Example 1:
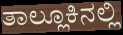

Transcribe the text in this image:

ತಾಲ್ಲೂಕಿನಲ್ಲಿ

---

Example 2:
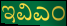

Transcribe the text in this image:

ಇವಿಎಂ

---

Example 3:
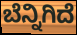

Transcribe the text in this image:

ಬೆನ್ನಿಗಿದೆ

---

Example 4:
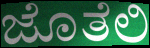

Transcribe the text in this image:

ಜೊತೆಲಿ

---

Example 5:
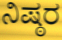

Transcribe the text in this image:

ನಿಷ್ಠರ